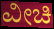
ವೀಚಿ